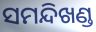
ସମନ୍ଦିଖଣ୍ଡ